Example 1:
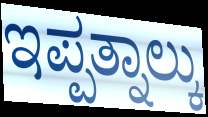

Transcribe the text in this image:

ಇಪ್ಪತ್ನಾಲ್ಕು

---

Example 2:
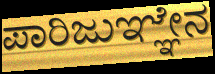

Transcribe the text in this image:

ಪಾರಿಜುಞ್ಞೇನ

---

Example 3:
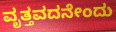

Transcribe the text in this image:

ವೃತ್ತವದನೇಂದು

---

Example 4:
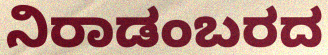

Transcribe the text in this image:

ನಿರಾಡಂಬರದ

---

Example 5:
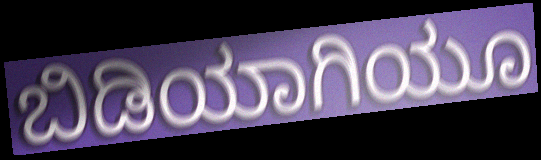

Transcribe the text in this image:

ಬಿಡಿಯಾಗಿಯೂ